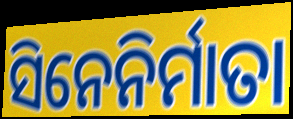
ସିନେନିର୍ମାତା